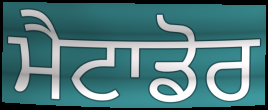
ਮੈਟਾਡੋਰ